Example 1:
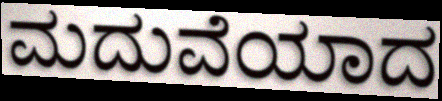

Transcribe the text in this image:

ಮದುವೆಯಾದ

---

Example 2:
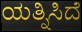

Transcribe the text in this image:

ಯತ್ನಿಸಿದೆ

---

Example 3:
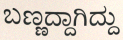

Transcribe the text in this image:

ಬಣ್ಣದ್ದಾಗಿದ್ದು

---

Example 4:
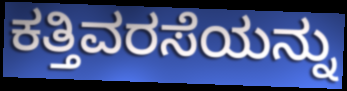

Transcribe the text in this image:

ಕತ್ತಿವರಸೆಯನ್ನು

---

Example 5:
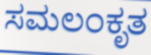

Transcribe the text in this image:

ಸಮಲಂಕೃತ